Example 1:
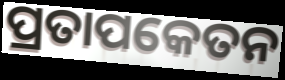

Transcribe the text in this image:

ପ୍ରତାପକେତନ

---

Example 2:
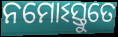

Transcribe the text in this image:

ନମୋଽସ୍ତୁତେ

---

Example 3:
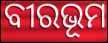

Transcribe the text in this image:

ବୀରଭୂମ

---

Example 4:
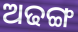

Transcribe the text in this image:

ଅଢଙ୍ଗ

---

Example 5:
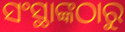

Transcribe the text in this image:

ସଂସ୍ଥାଙ୍କଠାରୁ